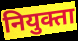
नियुक्ता